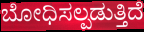
ಬೋಧಿಸಲ್ಪಡುತ್ತಿದೆ